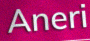
Aneri